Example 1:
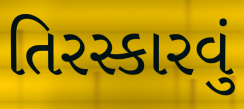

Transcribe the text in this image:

તિરસ્કારવું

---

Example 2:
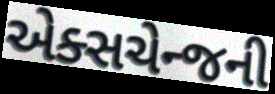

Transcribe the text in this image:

એક્સચેન્જની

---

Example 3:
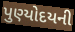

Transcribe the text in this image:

પુણ્યોદયની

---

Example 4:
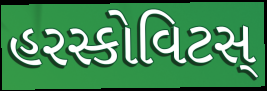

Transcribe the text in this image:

હરસ્કોવિટસ્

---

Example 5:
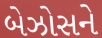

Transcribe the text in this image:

બેઝોસને